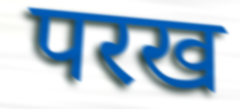
परख